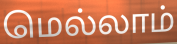
மெல்லாம்